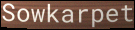
Sowkarpet